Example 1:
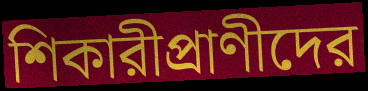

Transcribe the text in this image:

শিকারীপ্রাণীদের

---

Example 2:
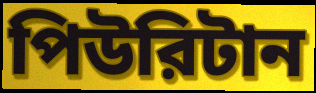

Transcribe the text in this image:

পিউরিটান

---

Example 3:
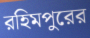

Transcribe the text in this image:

রহিমপুরের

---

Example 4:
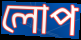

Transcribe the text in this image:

লোপ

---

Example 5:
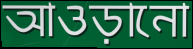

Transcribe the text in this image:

আওড়ানো